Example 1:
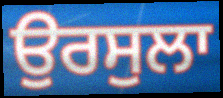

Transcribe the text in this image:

ਉਰਸੁਲਾ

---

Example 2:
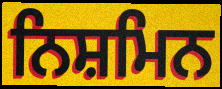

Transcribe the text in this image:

ਨਿਸ਼ਮਿਨ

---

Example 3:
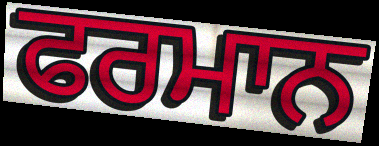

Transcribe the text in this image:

ਫਰਮਾਨ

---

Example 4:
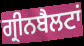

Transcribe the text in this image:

ਗ੍ਰੀਨਬੈਲਟਾਂ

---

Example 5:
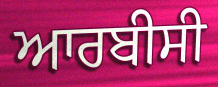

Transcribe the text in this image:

ਆਰਬੀਸੀ